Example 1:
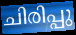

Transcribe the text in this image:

ചിരിപ്പു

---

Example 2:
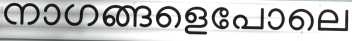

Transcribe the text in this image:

നാഗങ്ങളെപോലെ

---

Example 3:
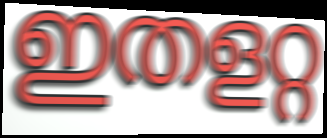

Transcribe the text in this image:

ഇതളറ്റ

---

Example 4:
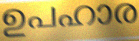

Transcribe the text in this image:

ഉപഹാര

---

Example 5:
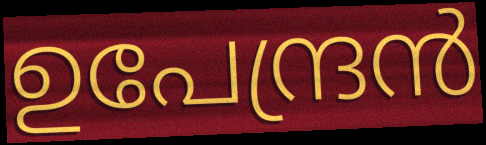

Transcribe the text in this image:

ഉപേന്ദ്രൻ